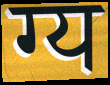
ग्य